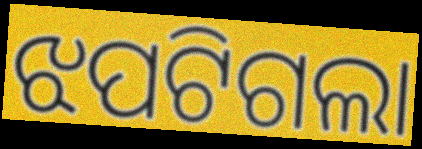
ଝପଟିଗଲା